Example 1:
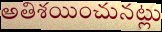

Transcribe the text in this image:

అతిశయించునట్లు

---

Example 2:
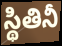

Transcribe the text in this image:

స్థితినీ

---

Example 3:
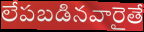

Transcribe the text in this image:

లేపబడినవారైతే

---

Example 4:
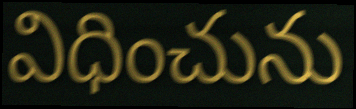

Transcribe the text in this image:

విధించును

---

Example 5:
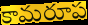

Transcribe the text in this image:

కామరూప